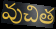
వుచిత